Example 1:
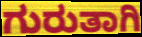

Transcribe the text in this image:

ಗುರುತಾಗಿ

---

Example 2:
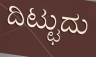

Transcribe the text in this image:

ದಿಟ್ಟುದು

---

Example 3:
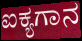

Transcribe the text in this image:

ಐಕ್ಯಗಾನ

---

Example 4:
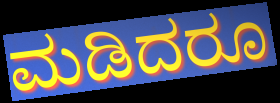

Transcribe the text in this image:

ಮಡಿದರೂ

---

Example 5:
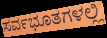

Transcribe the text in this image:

ಸರ್ವಭೂತಗಳಲ್ಲಿ